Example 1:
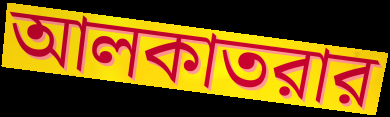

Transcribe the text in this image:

আলকাতরার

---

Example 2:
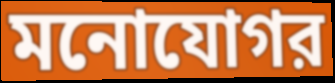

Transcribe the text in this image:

মনোযোগর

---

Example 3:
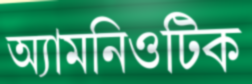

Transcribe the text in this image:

অ্যামনিওটিক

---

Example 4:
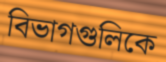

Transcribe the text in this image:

বিভাগগুলিকে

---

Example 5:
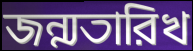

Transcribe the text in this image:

জন্মতারিখ